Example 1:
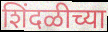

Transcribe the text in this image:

शिंदळीच्या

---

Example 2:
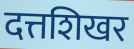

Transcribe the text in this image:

दत्तशिखर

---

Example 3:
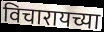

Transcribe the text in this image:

विचारायच्या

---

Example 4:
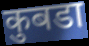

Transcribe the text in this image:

कुबडा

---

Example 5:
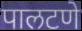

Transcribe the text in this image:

पालटणे